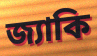
জ্যাকি